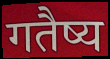
गतैष्य